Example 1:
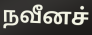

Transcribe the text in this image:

நவீனச்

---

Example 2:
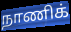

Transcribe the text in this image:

நாணிக்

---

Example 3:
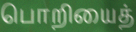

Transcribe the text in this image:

பொறியைத்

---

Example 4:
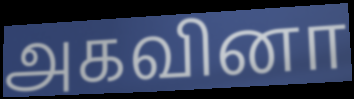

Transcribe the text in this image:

அகவினா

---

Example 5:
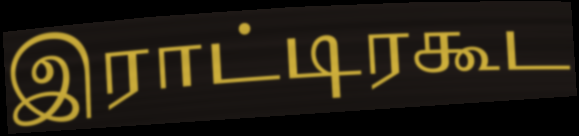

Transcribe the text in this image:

இராட்டிரகூட